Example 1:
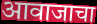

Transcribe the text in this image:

आवाजाचा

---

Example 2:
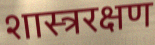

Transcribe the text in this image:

शास्त्ररक्षण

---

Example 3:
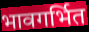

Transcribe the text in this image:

भावगर्भित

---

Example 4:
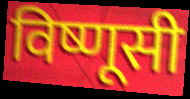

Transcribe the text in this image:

विष्णूसी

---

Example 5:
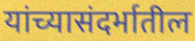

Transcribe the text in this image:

यांच्यासंदर्भातील